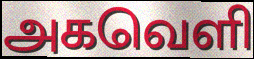
அகவெளி